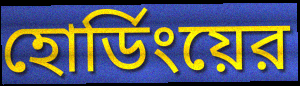
হোর্ডিংয়ের